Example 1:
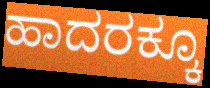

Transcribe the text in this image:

ಹಾದರಕ್ಕೂ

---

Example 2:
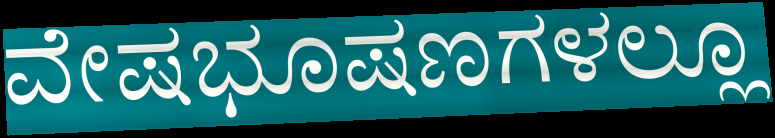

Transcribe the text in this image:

ವೇಷಭೂಷಣಗಳಲ್ಲೂ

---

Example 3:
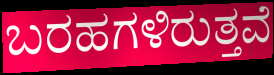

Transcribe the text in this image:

ಬರಹಗಳಿರುತ್ತವೆ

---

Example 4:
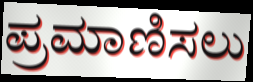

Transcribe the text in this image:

ಪ್ರಮಾಣಿಸಲು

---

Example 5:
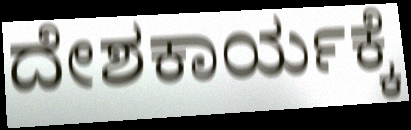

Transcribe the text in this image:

ದೇಶಕಾರ್ಯಕ್ಕೆ